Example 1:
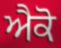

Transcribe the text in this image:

ਐਕੋ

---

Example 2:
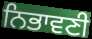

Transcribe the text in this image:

ਨਿਭਾਵਣੀ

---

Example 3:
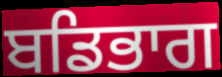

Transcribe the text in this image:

ਬਡਿਭਾਗ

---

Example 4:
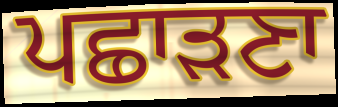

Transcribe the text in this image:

ਪਛਾੜਣਾ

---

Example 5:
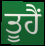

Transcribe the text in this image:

ਤੂਹੈਂ